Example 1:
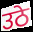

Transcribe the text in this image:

उठे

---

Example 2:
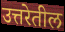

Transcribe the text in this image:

उत्तरेतील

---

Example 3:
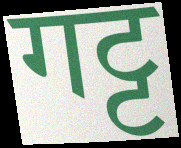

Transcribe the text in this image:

गट्ट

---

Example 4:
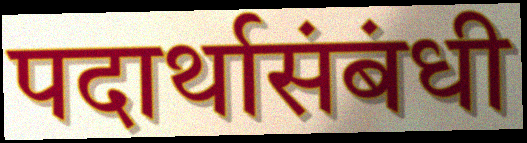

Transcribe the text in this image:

पदार्थासंबंधी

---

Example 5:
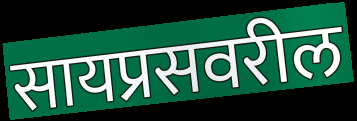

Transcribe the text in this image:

सायप्रसवरील